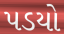
પડયો